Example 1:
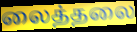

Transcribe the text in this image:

லைத்தலை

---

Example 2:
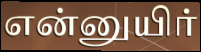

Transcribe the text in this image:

என்னுயிர்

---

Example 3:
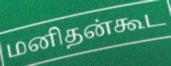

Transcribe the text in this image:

மனிதன்கூட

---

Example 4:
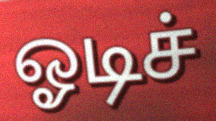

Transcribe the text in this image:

ஓடிச்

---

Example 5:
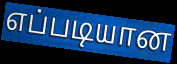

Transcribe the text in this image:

எப்படியான